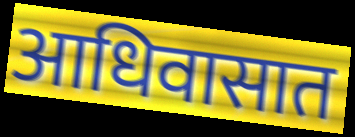
आधिवासात